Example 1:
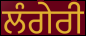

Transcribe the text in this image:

ਲੰਗੇਰੀ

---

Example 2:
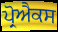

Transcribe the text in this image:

ਪ੍ਰੋਐਕਸ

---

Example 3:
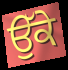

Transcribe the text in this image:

ਉੱਕੇ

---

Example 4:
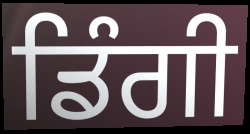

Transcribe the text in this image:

ਡਿੰਗੀ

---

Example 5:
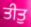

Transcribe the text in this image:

ਤੀਤੁ